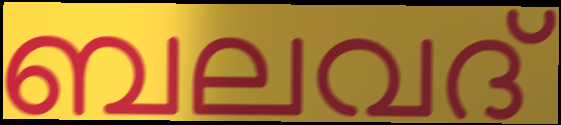
ബലവദ്